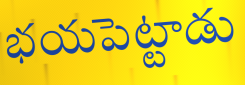
భయపెట్టాడు